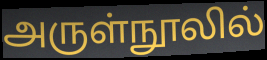
அருள்நூலில்